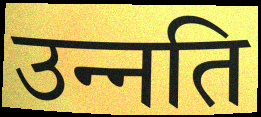
उन्‍नति